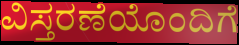
ವಿಸ್ತರಣೆಯೊಂದಿಗೆ